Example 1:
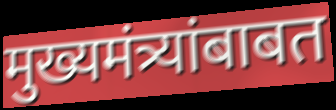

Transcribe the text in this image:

मुख्यमंत्र्यांबाबत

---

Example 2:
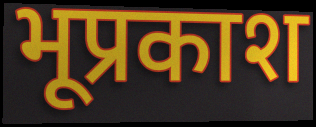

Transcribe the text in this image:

भूप्रकाश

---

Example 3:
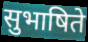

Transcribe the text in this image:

सुभाषिते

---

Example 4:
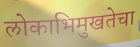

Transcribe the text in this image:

लोकाभिमुखतेचा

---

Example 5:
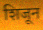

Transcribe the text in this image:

शिजून